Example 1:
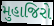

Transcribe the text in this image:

મુહાજિરો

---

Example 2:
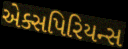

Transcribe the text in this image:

એક્સપિરિયન્સ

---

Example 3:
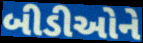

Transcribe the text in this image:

બીડીઓને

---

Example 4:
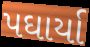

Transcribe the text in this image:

પઘાર્યા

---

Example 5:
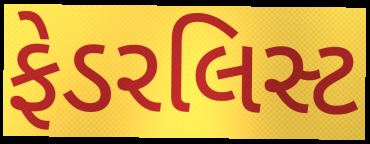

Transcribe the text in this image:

ફેડરલિસ્ટ